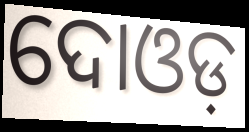
ଦୋଓଡ଼